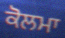
ਕੋਲਮਾ